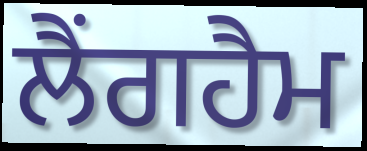
ਲੈਂਗਹੈਮ